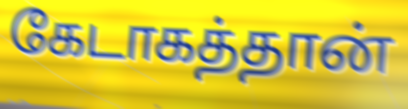
கேடாகத்தான்